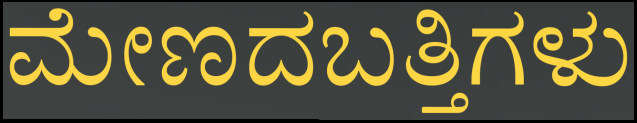
ಮೇಣದಬತ್ತಿಗಳು